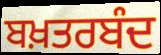
ਬਖ਼ਤਰਬੰਦ